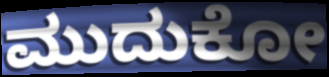
ಮುದುಕೋ